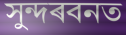
সুন্দৰবনত